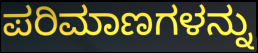
ಪರಿಮಾಣಗಳನ್ನು